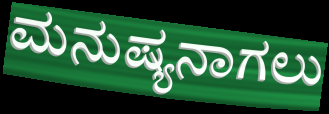
ಮನುಷ್ಯನಾಗಲು